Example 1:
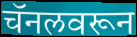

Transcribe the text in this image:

चॅनलवरून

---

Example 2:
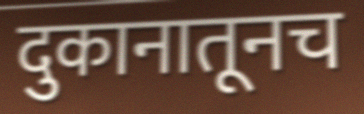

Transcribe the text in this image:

दुकानातूनच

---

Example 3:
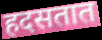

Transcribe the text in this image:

हदसतात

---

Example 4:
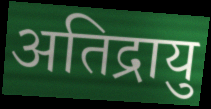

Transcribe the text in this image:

अतिद्रायु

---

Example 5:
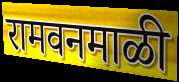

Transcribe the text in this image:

रामवनमाळी